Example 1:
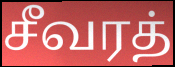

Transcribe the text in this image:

சீவரத்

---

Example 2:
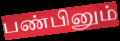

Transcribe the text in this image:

பண்பினும்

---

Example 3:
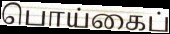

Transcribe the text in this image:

பொய்கைப்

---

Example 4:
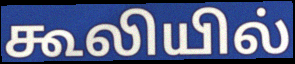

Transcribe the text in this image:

கூலியில்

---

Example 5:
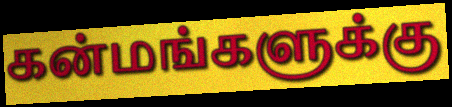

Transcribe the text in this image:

கன்மங்களுக்கு